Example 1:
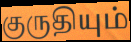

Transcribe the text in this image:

குருதியும்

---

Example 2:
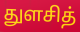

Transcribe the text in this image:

துளசித்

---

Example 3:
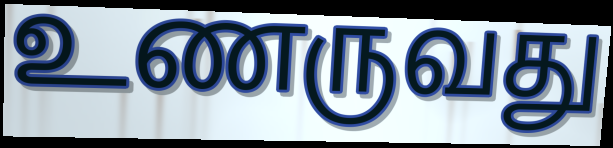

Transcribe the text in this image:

உணருவது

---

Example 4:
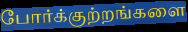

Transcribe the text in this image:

போர்க்குற்றங்களை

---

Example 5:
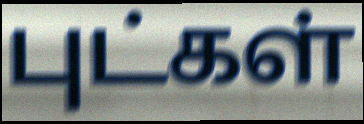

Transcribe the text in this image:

புட்கள்